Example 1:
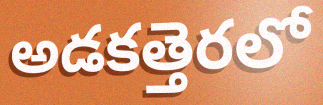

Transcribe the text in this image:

అడకత్తెరలో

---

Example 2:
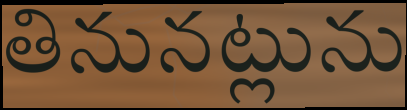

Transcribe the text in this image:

తినునట్లును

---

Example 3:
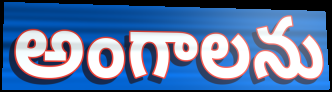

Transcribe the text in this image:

అంగాలను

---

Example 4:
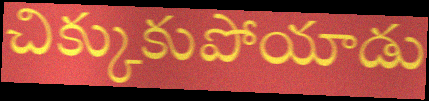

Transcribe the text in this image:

చిక్కుకుపోయాడు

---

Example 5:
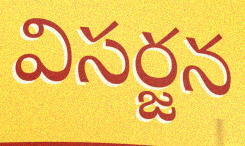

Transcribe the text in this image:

విసర్జన